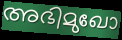
അഭിമുഖോ